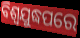
ବିଶ୍ୱଯୁଦ୍ଧପରେ